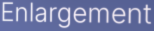
Enlargement